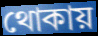
থোকায়